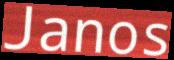
Janos